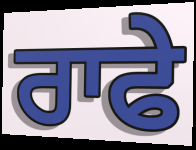
ਰਾਫੇ